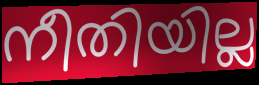
നീതിയില്ല